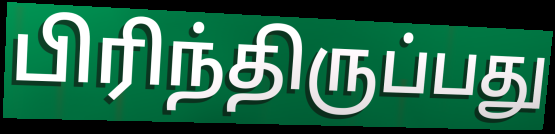
பிரிந்திருப்பது